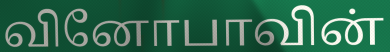
வினோபாவின்